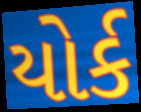
યોર્ક